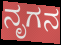
ನೃಗನ